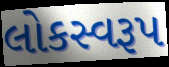
લોકસ્વરૂપ